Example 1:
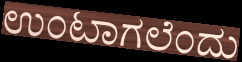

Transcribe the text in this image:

ಉಂಟಾಗಲೆಂದು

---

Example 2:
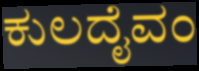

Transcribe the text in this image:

ಕುಲದೈವಂ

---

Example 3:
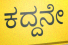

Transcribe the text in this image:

ಕದ್ದನೇ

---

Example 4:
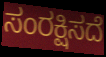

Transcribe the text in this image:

ಸಂರಕ್ಷಿಸದೆ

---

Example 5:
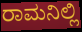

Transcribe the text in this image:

ರಾಮನಿಲ್ಲಿ